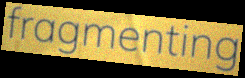
fragmenting